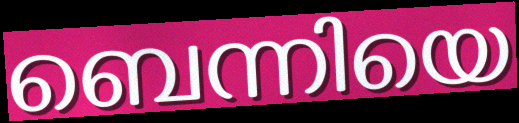
ബെന്നിയെ